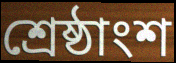
শ্রেষ্ঠাংশ